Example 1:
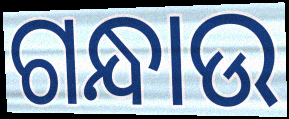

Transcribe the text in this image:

ଗନ୍ଧାଉ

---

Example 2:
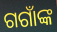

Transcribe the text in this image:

ଗଗାଁଙ୍କ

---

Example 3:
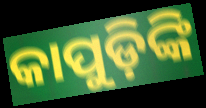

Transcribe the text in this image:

କାପୁଡ଼ିଙ୍କି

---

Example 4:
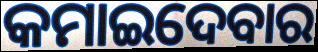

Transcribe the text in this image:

କମାଇଦେବାର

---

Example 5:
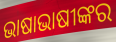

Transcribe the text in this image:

ଭାଷାଭାଷୀଙ୍କର